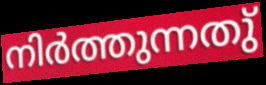
നിർത്തുന്നതു്